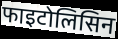
फाइटोलिसिन